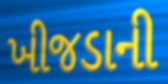
ખીજડાની